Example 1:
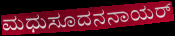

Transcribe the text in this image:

ಮಧುಸೂದನನಾಯರ್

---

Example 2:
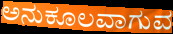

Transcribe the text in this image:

ಅನುಕೂಲವಾಗುವ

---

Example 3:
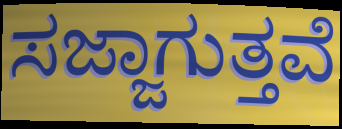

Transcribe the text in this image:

ಸಜ್ಜಾಗುತ್ತವೆ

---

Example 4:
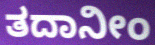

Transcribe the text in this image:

ತದಾನೀಂ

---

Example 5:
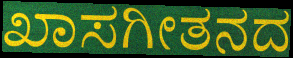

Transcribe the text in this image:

ಖಾಸಗೀತನದ